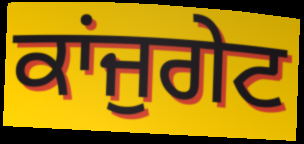
ਕਾਂਜੁਗੇਟ